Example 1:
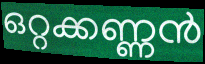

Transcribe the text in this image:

ഒറ്റക്കണ്ണൻ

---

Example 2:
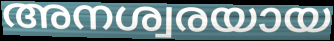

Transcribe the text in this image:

അനശ്വരയായ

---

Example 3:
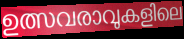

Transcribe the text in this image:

ഉത്സവരാവുകളിലെ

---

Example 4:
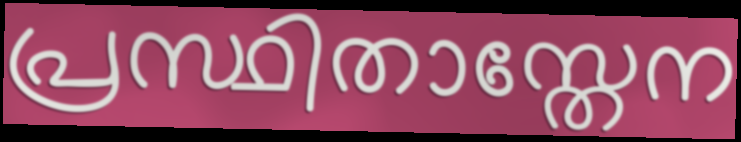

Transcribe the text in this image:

പ്രസ്ഥിതാസ്തേന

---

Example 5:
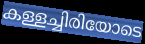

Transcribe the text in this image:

കള്ളച്ചിരിയോടെ